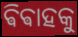
ଵିଵାହକୁ